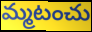
మ్మటంచు